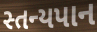
સ્તન્યપાન